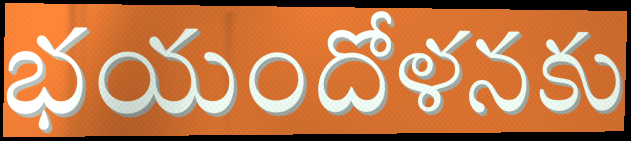
భయందోళనకు